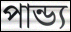
পান্ড্য